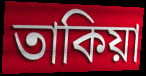
তাকিয়া